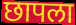
छापला